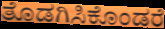
ತೊಡಗಿಸಿಕೊಂಡರೆ